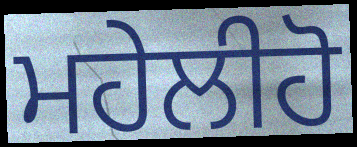
ਮਹੇਲੀਹੋ